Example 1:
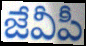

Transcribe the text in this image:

జేవీపీ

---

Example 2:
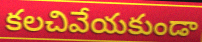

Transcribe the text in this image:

కలచివేయకుండా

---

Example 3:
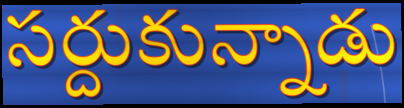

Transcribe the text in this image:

సర్దుకున్నాడు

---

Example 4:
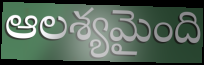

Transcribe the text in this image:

ఆలశ్యమైంది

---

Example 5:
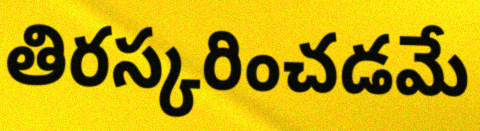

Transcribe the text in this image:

తిరస్కరించడమే